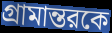
গ্রামান্তরকে